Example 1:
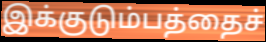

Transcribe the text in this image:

இக்குடும்பத்தைச்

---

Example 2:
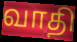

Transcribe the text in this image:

வாதி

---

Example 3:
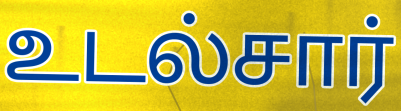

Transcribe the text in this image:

உடல்சார்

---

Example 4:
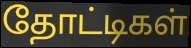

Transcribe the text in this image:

தோட்டிகள்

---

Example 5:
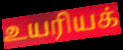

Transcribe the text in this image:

உயரியக்